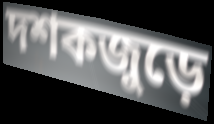
দশকজুড়ে